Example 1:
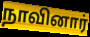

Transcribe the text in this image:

நாவினார்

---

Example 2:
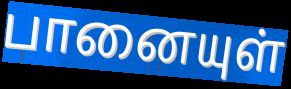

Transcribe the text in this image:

பானையுள்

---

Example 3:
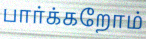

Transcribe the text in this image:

பார்க்கறோம்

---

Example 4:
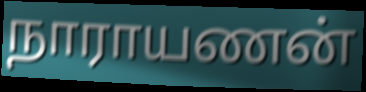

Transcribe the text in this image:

நாராயணன்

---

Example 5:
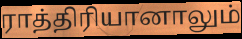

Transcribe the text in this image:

ராத்திரியானாலும்